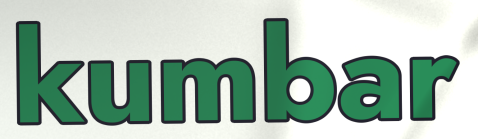
kumbar